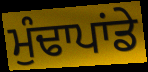
ਮੁੰਢਾਪਾਂਡੇ